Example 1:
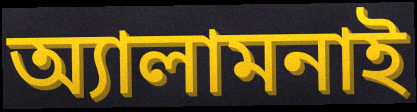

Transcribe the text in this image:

অ্যালামনাই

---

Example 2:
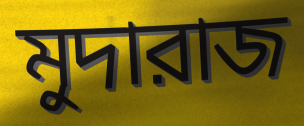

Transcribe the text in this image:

মুদারাজ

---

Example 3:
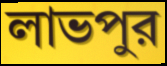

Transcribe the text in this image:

লাভপুর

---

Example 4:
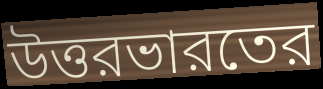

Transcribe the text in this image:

উত্তরভারতের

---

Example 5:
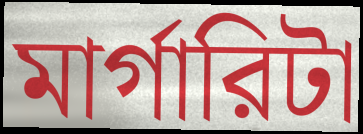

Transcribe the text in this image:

মার্গারিটা